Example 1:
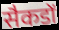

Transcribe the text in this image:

सैकडों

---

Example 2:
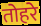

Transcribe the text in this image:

तोहरे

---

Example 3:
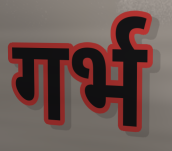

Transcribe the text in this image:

गर्भ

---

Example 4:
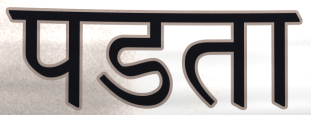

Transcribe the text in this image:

पडता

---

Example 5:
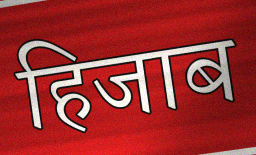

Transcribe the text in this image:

हिजाब